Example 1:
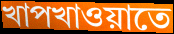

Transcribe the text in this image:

খাপখাওয়াতে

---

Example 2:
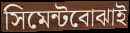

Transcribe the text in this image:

সিমেন্টবোঝাই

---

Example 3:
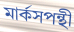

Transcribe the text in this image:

মার্কসপন্থী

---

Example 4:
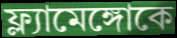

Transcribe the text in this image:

ফ্ল্যামেঙ্গোকে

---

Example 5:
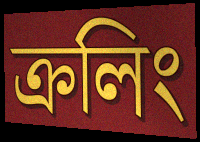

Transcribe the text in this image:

ক্রলিং